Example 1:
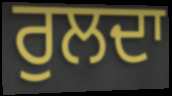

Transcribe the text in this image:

ਰੁਲਦਾ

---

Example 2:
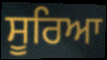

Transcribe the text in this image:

ਸੂਰਿਆ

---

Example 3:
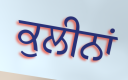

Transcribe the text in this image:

ਕੁਲੀਨਾਂ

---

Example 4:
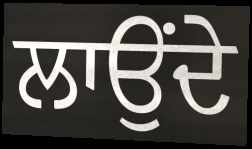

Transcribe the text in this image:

ਲਾਉਂਦੇ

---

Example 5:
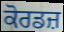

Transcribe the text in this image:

ਕੋਰਡਜ਼